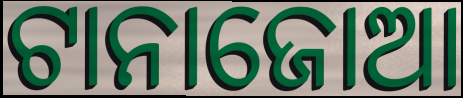
ଟାନାଜୋଆ